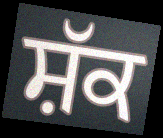
ਸ਼ੱਕ